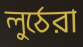
লুঠেরা